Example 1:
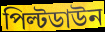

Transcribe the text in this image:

পিল্টডাউন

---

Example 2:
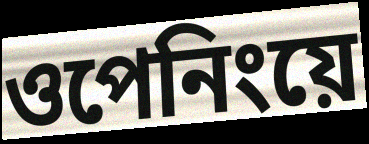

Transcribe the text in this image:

ওপেনিংয়ে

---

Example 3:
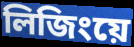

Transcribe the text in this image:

লিজিংয়ে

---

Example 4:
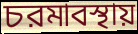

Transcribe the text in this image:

চরমাবস্থায়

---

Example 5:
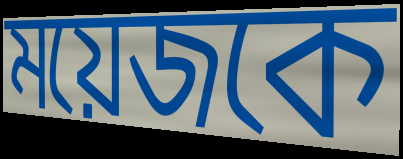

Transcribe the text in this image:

ময়েজকে